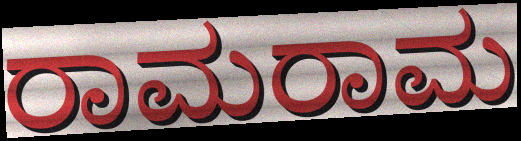
ರಾಮರಾಮ